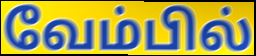
வேம்பில்